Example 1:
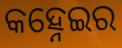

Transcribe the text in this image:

କହ୍ନେଇର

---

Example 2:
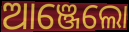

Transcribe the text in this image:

ଆଞ୍ଜେଲୋ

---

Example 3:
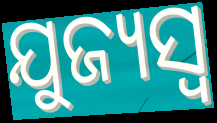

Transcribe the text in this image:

ଯୁଜ୍ୟସ୍ୱ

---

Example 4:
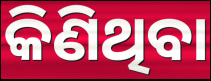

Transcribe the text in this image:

କିଣିଥିବା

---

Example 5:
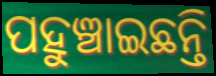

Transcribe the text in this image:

ପହୁଞ୍ଚାଇଛନ୍ତି